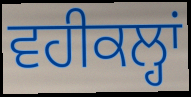
ਵਹੀਕਲ੍ਹਾਂ